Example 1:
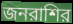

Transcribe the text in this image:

জনরাশির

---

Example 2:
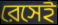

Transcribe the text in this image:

রেসেই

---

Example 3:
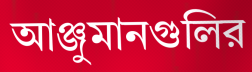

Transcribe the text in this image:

আঞ্জুমানগুলির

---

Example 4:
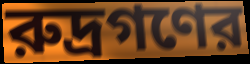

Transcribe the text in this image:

রুদ্রগণের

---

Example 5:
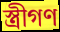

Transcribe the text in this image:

স্ত্রীগণ